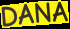
DANA